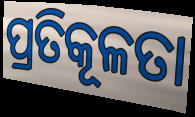
ପ୍ରତିକୂଳତା